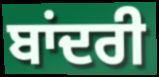
ਬਾਂਦਰੀ